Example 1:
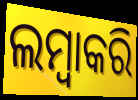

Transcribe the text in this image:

ଲମ୍ବାକରି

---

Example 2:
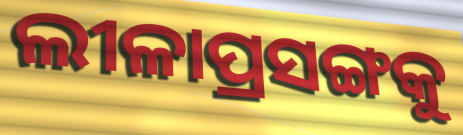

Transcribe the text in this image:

ଲୀଳାପ୍ରସଙ୍ଗକୁ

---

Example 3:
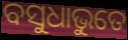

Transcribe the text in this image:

ବସୁଧାଭୁତେ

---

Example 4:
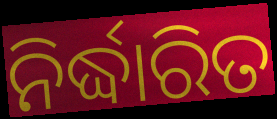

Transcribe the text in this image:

ନିର୍ଦ୍ଧାରିତ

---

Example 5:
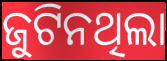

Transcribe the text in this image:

ଜୁଟିନଥିଲା